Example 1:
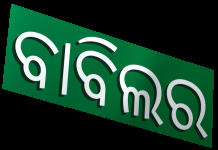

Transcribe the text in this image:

ବାବିଲର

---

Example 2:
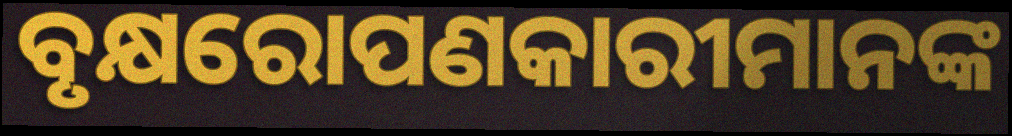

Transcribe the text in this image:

ବୃକ୍ଷରୋପଣକାରୀମାନଙ୍କ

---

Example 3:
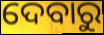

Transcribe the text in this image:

ଦେବାରୁ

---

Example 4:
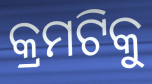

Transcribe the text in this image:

କ୍ରମଟିକୁ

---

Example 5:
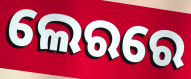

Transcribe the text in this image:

ଲେରରେ